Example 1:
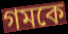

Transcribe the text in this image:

গমকে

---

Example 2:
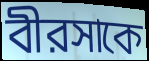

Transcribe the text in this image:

বীরসাকে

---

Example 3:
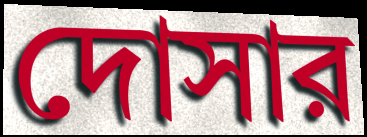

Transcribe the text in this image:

দোসার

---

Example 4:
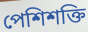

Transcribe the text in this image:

পেশিশক্তি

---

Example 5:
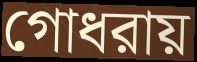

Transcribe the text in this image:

গোধরায়